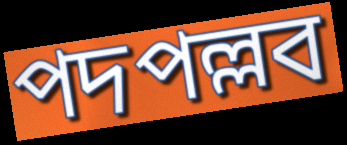
পদপল্লব